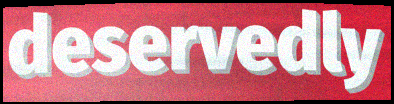
deservedly